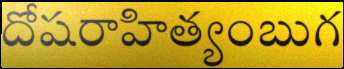
దోషరాహిత్యంబుగ